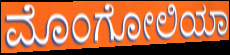
ಮೊಂಗೋಲಿಯಾ